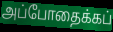
அப்போதைக்கப்